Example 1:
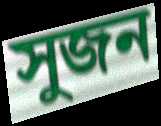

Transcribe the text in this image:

সুজন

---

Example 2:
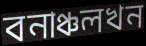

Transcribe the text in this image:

বনাঞ্চলখন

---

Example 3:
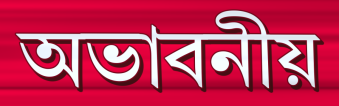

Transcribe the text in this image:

অভাবনীয়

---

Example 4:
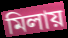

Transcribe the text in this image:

মিলায়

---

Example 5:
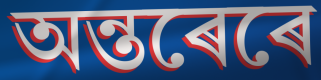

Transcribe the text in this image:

অন্তৰেৰে